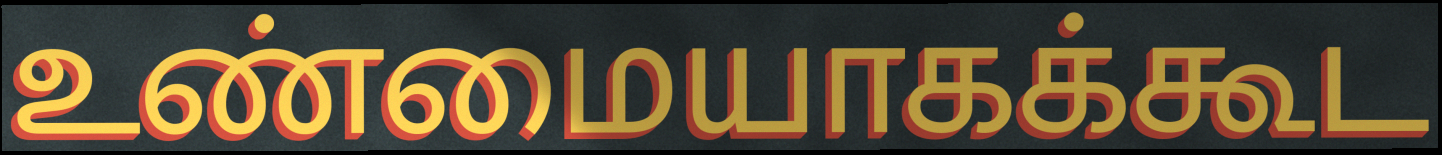
உண்மையாகக்கூட